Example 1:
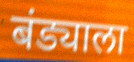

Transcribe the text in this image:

बंड्याला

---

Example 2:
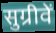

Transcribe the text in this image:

सुग्रीवें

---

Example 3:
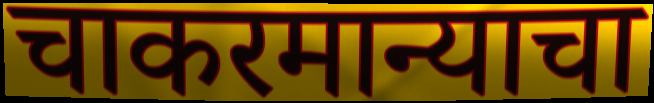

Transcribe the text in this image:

चाकरमान्याचा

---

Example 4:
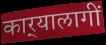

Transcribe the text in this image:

कार्यालागीं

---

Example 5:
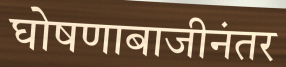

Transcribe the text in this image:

घोषणाबाजीनंतर